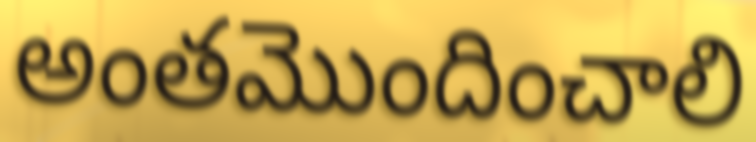
అంతమొందించాలి